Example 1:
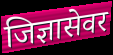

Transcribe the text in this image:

जिज्ञासेवर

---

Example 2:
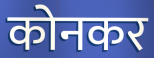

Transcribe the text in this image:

कोनकर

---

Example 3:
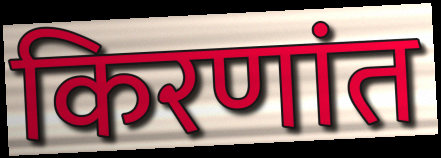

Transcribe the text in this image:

किरणांत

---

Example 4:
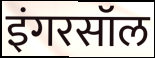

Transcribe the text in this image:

इंगरसॉल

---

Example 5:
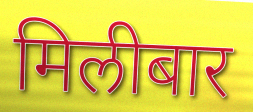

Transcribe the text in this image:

मिलीबार